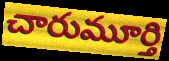
చారుమూర్తి